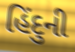
હિંદુની